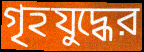
গৃহযুদ্ধের